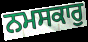
ਨਮਸਕਾਰੁ